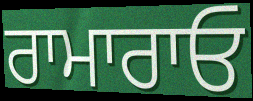
ਰਾਮਾਰਾਓ